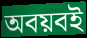
অবয়বই